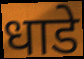
धाडे